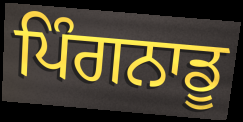
ਪਿੰਗਨਾਡੂ